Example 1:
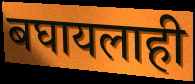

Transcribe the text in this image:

बघायलाही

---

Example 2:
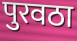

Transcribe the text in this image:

पुरवठा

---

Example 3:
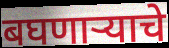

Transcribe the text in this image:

बघणाऱ्याचे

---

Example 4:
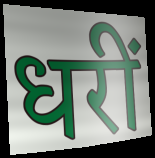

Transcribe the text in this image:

धरीं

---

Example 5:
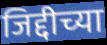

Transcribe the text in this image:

जिद्दीच्या